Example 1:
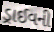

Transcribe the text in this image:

ડ્રાઈવની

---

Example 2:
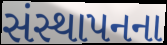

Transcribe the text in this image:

સંસ્થાપનના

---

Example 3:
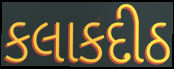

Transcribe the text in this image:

કલાકદીઠ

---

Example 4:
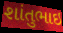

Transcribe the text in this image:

શાંતુભાઇ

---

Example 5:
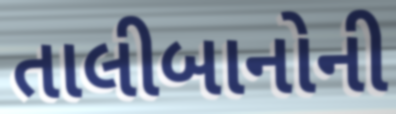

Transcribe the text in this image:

તાલીબાનોની